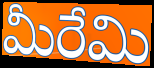
మీరేమి